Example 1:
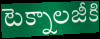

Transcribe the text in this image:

టెక్నాలజీకి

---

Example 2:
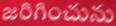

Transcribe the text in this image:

జరిగించును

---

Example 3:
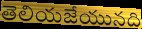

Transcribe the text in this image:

తెలియజేయునది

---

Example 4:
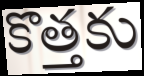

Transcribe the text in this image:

కొత్తకు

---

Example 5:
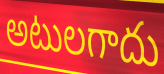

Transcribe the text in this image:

అటులగాదు